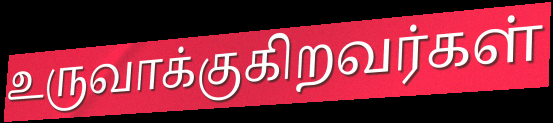
உருவாக்குகிறவர்கள்